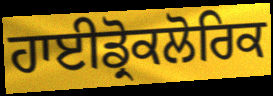
ਹਾਈਡ੍ਰੋਕਲੋਰਿਕ